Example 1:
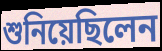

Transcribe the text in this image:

শুনিয়েছিলেন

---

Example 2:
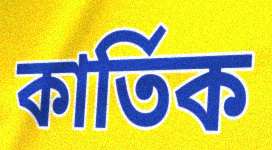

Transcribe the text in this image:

কার্তিক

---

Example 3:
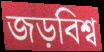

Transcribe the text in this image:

জড়বিশ্ব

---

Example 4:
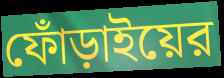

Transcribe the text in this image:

ফোঁড়াইয়ের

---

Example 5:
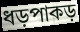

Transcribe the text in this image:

ধড়পাকড়